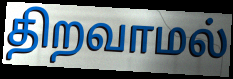
திறவாமல்